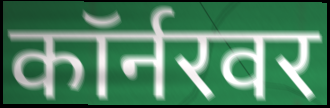
कॉर्नरवर